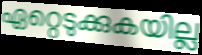
ഏറ്റെടുക്കുകയില്ല